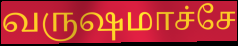
வருஷமாச்சே